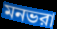
মনভরা